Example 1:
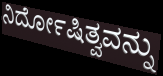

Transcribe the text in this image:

ನಿರ್ದೋಷಿತ್ವವನ್ನು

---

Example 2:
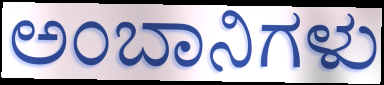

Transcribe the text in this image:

ಅಂಬಾನಿಗಳು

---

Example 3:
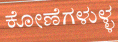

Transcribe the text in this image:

ಕೋಣೆಗಳುಳ್ಳ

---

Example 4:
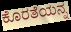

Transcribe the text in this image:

ಕೊರತೆಯನ್ನ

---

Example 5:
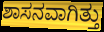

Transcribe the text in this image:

ಶಾಸನವಾಗಿತ್ತು